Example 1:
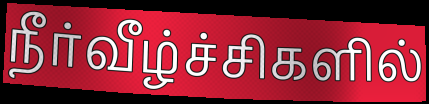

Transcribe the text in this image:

நீர்வீழ்ச்சிகளில்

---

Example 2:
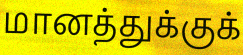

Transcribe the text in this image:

மானத்துக்குக்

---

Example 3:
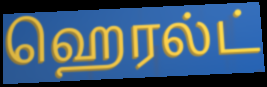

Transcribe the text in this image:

ஹெரல்ட்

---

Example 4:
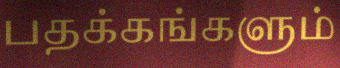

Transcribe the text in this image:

பதக்கங்களும்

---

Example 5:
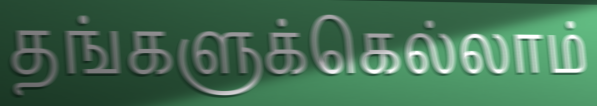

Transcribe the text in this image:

தங்களுக்கெல்லாம்